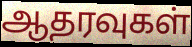
ஆதரவுகள்